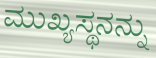
ಮುಖ್ಯಸ್ಥನನ್ನು